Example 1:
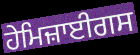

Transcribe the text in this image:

ਹੇਮਿਜ਼ਾਈਗਸ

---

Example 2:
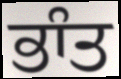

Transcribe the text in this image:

ਭਾੰਤ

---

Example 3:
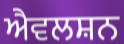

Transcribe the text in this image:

ਐਵਲਸ਼ਨ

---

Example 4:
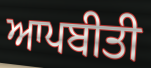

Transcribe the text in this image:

ਆਪਬੀਤੀ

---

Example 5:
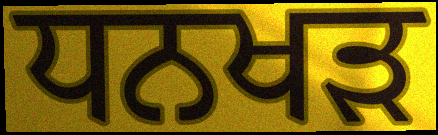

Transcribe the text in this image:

ਧਨਖੜ